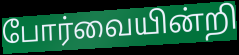
போர்வையின்றி